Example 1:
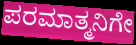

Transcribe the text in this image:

ಪರಮಾತ್ಮನಿಗೇ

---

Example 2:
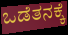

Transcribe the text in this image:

ಒಡೆತನಕ್ಕೆ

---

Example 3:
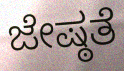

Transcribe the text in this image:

ಜೇಷ್ಠತೆ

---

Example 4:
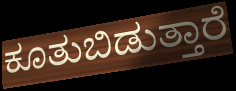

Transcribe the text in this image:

ಕೂತುಬಿಡುತ್ತಾರೆ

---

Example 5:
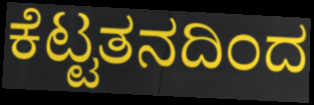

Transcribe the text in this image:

ಕೆಟ್ಟತನದಿಂದ